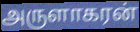
அருளாகரன்